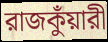
রাজকুঁয়ারী